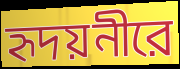
হৃদয়নীরে